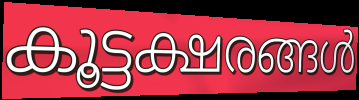
കൂട്ടക്ഷരങ്ങൾ